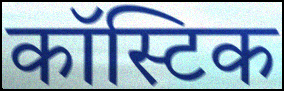
कॉस्टिक